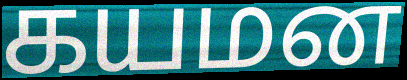
கயமன